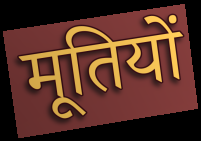
मूतियों